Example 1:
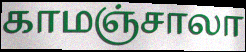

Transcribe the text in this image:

காமஞ்சாலா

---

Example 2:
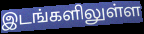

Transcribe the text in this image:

இடங்களிலுள்ள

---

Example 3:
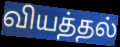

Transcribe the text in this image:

வியத்தல்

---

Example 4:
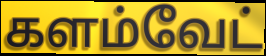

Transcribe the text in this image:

களம்வேட்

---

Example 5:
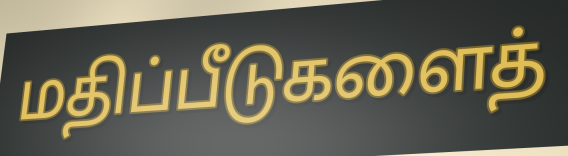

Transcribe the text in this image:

மதிப்பீடுகளைத்